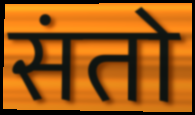
संतो